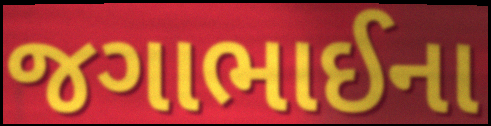
જગાભાઈના